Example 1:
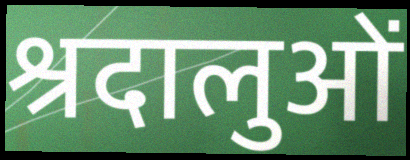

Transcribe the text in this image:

श्रदालुओं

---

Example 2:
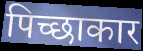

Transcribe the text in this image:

पिच्छाकार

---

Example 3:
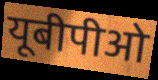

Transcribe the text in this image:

यूबीपीओ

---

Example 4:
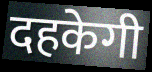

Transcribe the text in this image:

दहकेगी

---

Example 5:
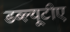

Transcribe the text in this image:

डब्ल्यूटीए